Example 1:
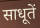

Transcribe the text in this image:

साधूतें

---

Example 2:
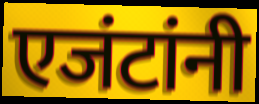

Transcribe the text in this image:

एजंटांनी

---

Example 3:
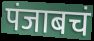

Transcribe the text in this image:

पंजाबचं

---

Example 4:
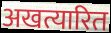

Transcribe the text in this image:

अखत्यारित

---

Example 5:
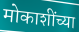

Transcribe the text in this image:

मोकाशींच्या